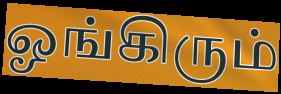
ஓங்கிரும்